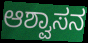
ಆಶ್ವಾಸನ